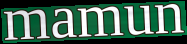
mamun